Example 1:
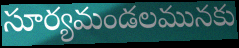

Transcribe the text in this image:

సూర్యమండలమునకు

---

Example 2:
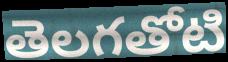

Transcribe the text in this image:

తెలగతోటి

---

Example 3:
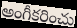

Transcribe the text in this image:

అంగీకరించు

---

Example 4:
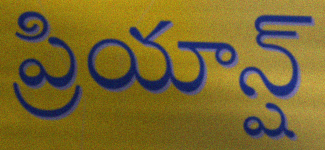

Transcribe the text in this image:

ప్రియాన్ష్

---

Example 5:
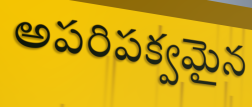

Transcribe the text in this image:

అపరిపక్వమైన